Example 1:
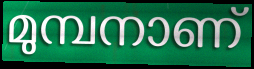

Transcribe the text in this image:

മുമ്പനാണ്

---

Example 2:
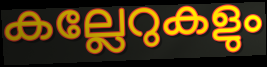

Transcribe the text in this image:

കല്ലേറുകളും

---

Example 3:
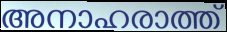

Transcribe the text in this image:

അനാഹരാത്ത്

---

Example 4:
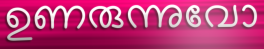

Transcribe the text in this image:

ഉണരുന്നുവോ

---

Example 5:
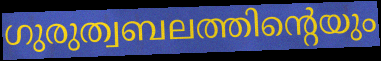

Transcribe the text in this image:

ഗുരുത്വബലത്തിന്റെയും